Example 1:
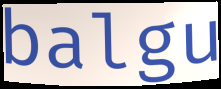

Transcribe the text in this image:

balgu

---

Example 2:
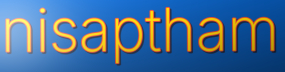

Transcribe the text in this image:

nisaptham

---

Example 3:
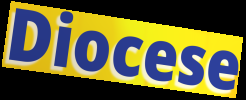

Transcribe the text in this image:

Diocese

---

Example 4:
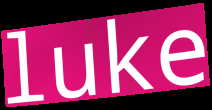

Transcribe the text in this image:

luke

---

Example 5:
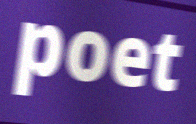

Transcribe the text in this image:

poet